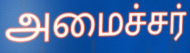
அமைச்சர்